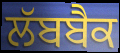
ਲੱਬਬੈਕ